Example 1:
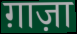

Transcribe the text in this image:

ग़ाज़ा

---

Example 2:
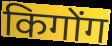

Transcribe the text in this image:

किगोंग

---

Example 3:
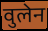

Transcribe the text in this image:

वुलेन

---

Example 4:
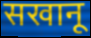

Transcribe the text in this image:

सखानू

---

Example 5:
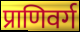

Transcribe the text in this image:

प्राणिवर्ग